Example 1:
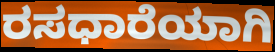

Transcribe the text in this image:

ರಸಧಾರೆಯಾಗಿ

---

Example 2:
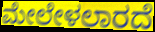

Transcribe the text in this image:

ಮೇಲೇಳಲಾರದೆ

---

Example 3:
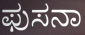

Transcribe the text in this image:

ಫುಸನಾ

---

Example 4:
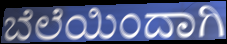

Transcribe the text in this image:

ಬೆಲೆಯಿಂದಾಗಿ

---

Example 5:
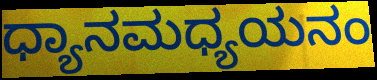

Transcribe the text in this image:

ಧ್ಯಾನಮಧ್ಯಯನಂ